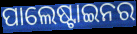
ପାଲେଷ୍ଟାଇନର